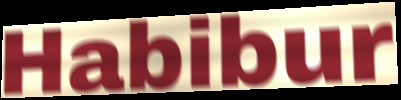
Habibur